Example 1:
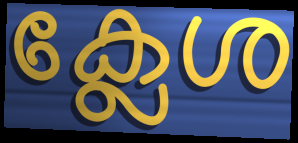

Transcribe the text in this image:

ക്ലേശ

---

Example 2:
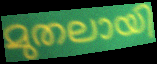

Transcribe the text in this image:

മുതലായി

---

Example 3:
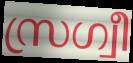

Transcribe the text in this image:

സ്രഗ്വീ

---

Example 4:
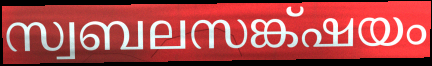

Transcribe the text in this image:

സ്വബലസങ്ക്ഷയം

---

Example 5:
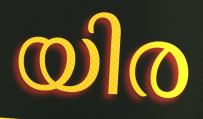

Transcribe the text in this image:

യിര